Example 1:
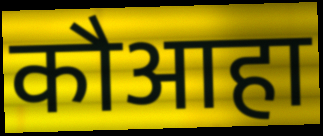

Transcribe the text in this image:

कौआहा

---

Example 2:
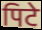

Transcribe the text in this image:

पिटे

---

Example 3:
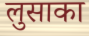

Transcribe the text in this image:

लुसाका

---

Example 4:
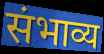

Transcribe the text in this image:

संभाव्य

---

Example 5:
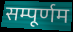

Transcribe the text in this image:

सम्पूर्णम